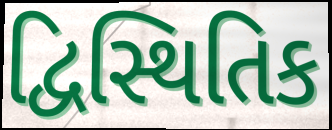
દ્વિસ્થિતિક